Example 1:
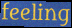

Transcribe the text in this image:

feeling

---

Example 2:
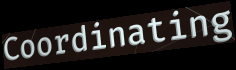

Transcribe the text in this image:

Coordinating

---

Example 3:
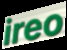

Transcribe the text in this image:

ireo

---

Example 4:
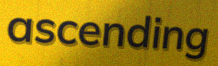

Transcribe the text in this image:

ascending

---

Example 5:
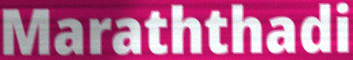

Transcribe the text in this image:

Maraththadi